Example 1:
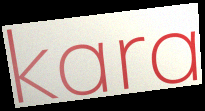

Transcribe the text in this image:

kara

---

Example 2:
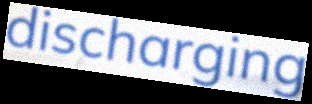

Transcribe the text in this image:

discharging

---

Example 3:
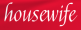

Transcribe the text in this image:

housewife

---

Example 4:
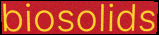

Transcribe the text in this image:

biosolids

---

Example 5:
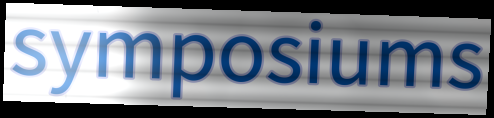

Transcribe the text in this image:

symposiums